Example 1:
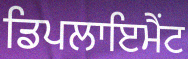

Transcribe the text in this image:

ਡਿਪਲਾਇਮੈਂਟ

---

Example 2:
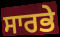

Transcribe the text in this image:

ਸਾਰਭੇ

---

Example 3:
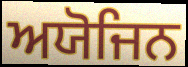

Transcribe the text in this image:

ਅਯੋਜਿਨ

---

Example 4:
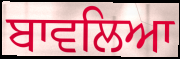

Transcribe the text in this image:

ਬਾਵਲਿਆ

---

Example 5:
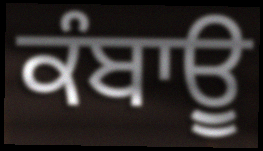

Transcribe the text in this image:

ਕੰਬਾਊੁ